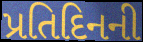
પ્રતિદિનની